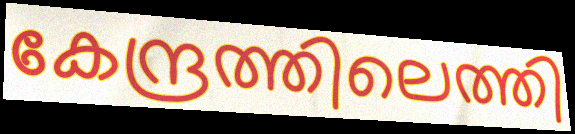
കേന്ദ്രത്തിലെത്തി